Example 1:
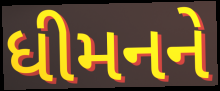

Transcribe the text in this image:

ધીમનને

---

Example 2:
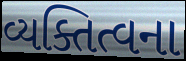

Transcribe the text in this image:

વ્યક્તિત્વના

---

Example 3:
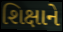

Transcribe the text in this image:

શિક્ષાને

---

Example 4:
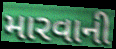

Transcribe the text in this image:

મારવાની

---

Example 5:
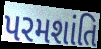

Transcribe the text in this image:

પરમશાંતિ